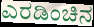
ಎರಡಿಂಚಿನ